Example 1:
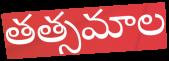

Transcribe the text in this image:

తత్సమాల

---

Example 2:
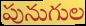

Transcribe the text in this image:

పునుగుల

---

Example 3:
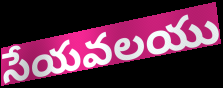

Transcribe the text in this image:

సేయవలయు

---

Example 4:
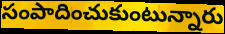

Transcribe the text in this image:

సంపాదించుకుంటున్నారు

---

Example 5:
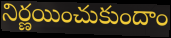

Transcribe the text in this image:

నిర్ణయించుకుందాం